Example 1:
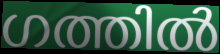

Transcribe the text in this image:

ഗത്തിൽ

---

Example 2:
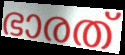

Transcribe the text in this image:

ഭാരത്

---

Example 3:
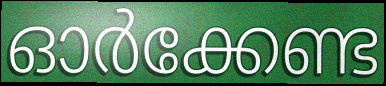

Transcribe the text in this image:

ഓർക്കേണ്ട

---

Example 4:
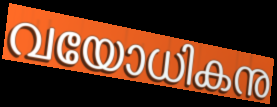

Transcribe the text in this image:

വയോധികനു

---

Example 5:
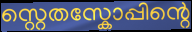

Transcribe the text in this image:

സ്റ്റെതസ്കോപ്പിന്റെ